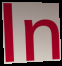
In